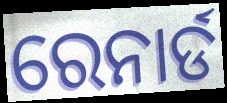
ରେନାର୍ଡ